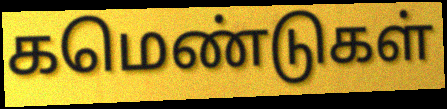
கமெண்டுகள்